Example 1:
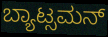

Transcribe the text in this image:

ಬ್ಯಾಟ್ಸಮನ್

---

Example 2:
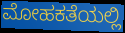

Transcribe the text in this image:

ಮೋಹಕತೆಯಲ್ಲಿ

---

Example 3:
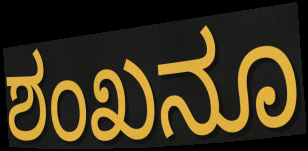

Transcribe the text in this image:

ಶಂಖನೂ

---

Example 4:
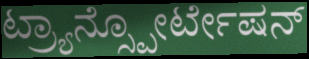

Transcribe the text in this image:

ಟ್ರ್ಯಾನ್ಸ್ಪೋರ್ಟೇಷನ್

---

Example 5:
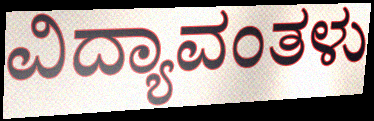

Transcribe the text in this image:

ವಿದ್ಯಾವಂತಳು